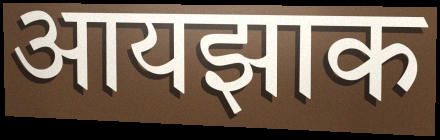
आयझाक